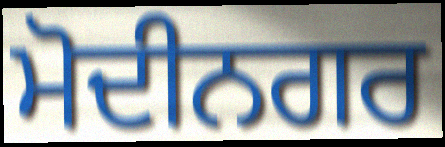
ਮੋਦੀਨਗਰ